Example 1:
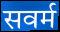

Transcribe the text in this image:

सवर्म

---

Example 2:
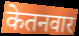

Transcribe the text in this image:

केतनवार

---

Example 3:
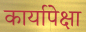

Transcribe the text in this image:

कार्यापेक्षा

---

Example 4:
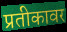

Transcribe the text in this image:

प्रतीकावर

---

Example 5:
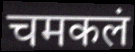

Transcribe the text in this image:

चमकलं